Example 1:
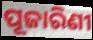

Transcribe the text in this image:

ପୂଜାରିଣୀ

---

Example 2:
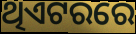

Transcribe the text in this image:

ଥିଏଟରରେ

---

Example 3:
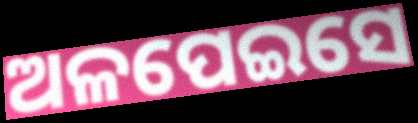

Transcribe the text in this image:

ଅଳପେଇସେ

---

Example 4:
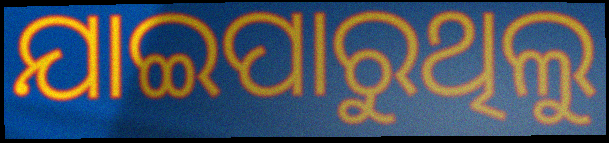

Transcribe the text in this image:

ଯାଇପାରୁଥିଲୁ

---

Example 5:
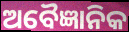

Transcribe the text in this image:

ଅବୈଜ୍ଞାନିକ